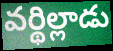
వర్థిల్లాడు